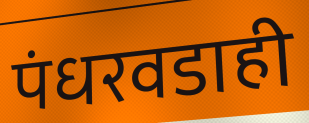
पंधरवडाही